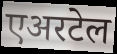
एअरटेल